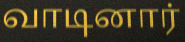
வாடினார்